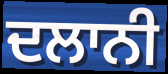
ਦਲਾਨੀ